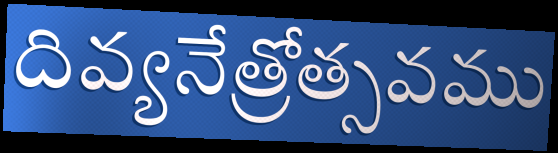
దివ్యనేత్రోత్సవము